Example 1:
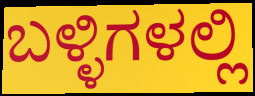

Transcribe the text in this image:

ಬಳ್ಳಿಗಳಲ್ಲಿ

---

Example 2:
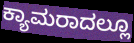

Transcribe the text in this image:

ಕ್ಯಾಮರಾದಲ್ಲೂ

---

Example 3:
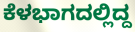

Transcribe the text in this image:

ಕೆಳಭಾಗದಲ್ಲಿದ್ದ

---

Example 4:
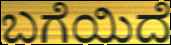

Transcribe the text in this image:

ಬಗೆಯಿದೆ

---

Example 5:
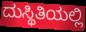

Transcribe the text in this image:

ದುಸ್ಥಿತಿಯಲ್ಲಿ